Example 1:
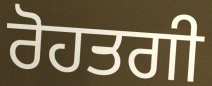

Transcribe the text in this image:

ਰੋਹਤਗੀ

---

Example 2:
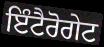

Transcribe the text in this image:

ਇੰਟੈਰੋਗੇਟ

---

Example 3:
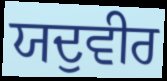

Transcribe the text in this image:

ਯਦੁਵੀਰ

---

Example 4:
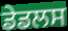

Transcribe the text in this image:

ਡੇਡਲਸ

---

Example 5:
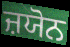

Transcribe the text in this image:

ਜ਼ਯੋਨ